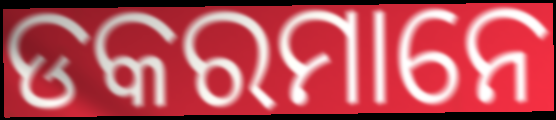
ଡକରମାନେ